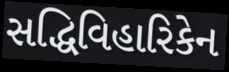
સદ્ધિવિહારિકેન